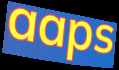
aaps